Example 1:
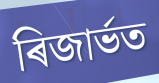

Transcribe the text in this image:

ৰিজাৰ্ভত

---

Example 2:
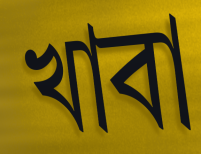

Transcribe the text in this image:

খাবা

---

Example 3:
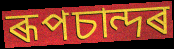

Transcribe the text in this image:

ৰূপচান্দৰ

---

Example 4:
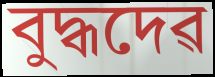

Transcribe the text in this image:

বুদ্ধদেৱ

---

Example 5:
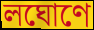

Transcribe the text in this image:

লঘোণে